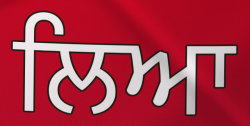
ਲਿਆ